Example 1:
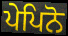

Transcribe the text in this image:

ਪੇਪਿਨੋ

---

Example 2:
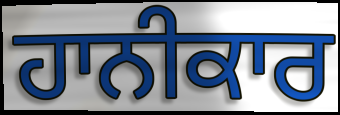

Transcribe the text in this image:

ਹਾਨੀਕਾਰ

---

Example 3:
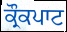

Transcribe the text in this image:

ਕ੍ਰੌਕਪਾਟ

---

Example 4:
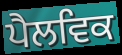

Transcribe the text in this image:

ਪੈਲਵਿਕ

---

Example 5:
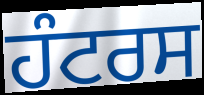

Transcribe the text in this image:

ਹੰਟਰਸ